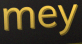
mey